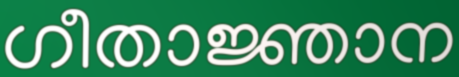
ഗീതാജ്ഞാന